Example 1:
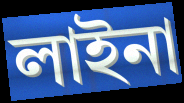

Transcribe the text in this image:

লাইনা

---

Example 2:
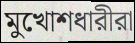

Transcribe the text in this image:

মুখোশধারীরা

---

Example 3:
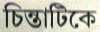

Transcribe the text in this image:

চিন্তাটিকে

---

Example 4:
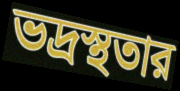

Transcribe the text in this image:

ভদ্রস্থতার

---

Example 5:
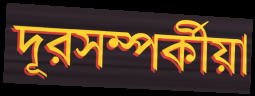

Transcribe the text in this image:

দূরসম্পর্কীয়া